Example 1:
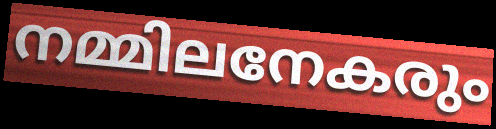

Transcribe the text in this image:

നമ്മിലനേകരും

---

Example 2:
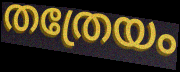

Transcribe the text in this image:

തത്രേയം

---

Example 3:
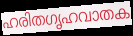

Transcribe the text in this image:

ഹരിതഗൃഹവാതക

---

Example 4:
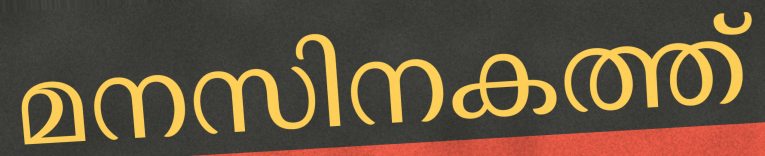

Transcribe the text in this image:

മനസിനകത്ത്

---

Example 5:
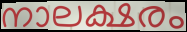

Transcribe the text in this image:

നാലക്ഷരം